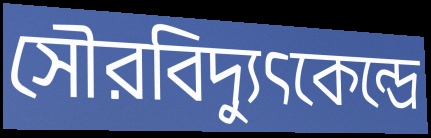
সৌরবিদ্যুৎকেন্দ্রে